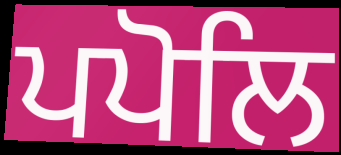
ਪਪੋਲਿ